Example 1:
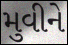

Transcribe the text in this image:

મુવીને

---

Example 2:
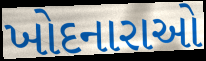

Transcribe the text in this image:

ખોદનારાઓ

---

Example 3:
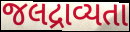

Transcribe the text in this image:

જલદ્રાવ્યતા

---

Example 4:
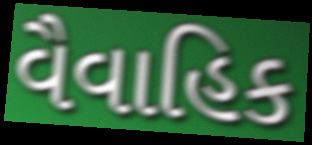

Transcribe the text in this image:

વૈવાહિક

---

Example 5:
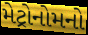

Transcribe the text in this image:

મેટ્રોનોમનો